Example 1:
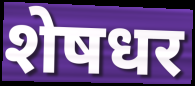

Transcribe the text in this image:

शेषधर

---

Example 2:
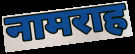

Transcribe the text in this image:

नामराह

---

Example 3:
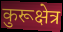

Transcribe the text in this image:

कुरूक्षेत्र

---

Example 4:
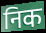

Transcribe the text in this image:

निक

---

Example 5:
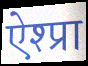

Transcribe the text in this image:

ऐश्प्रा